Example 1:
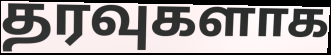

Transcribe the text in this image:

தரவுகளாக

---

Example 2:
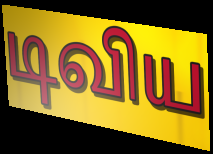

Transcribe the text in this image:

டிவிய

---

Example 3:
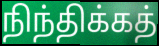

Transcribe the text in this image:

நிந்திக்கத்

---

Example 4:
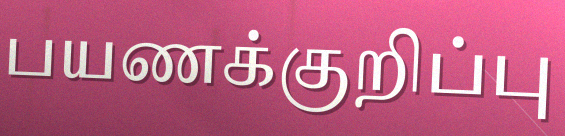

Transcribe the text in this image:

பயணக்குறிப்பு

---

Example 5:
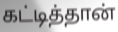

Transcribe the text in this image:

கட்டித்தான்